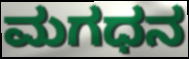
ಮಗಧನ